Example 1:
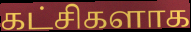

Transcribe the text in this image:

கட்சிகளாக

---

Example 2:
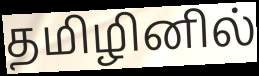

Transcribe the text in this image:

தமிழினில்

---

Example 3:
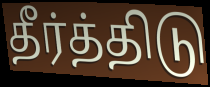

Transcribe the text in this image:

தீர்த்திடு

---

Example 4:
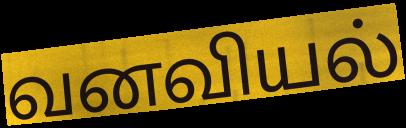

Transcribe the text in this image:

வனவியல்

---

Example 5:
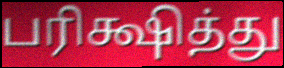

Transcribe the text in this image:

பரிக்ஷித்து